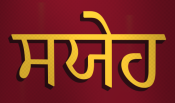
ਸਯੇਹ